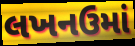
લખનઉમાં